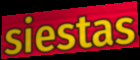
siestas